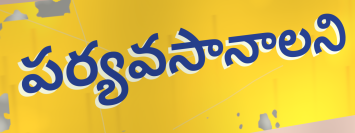
పర్యవసానాలని